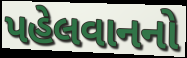
પહેલવાનનો